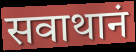
सवाथानं